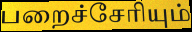
பறைச்சேரியும்